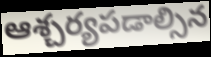
ఆశ్చర్యపడాల్సిన